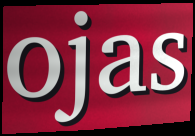
ojas